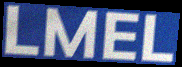
LMEL